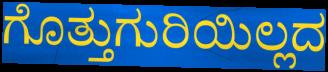
ಗೊತ್ತುಗುರಿಯಿಲ್ಲದ